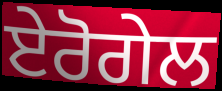
ਏਰੋਗੇਲ